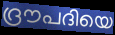
ദ്രൗപദിയെ